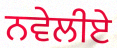
ਨਵੇਲੀਏ